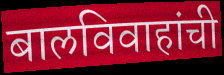
बालविवाहांची